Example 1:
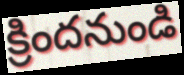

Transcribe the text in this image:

క్రిందనుండి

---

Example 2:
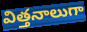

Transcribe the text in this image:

విత్తనాలుగా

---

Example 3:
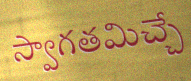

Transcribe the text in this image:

స్వాగతమిచ్చే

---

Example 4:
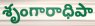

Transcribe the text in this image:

శృంగారాధిపా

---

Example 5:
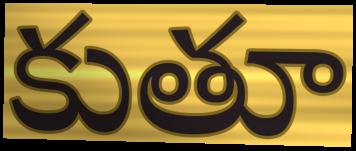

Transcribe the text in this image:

కుతూ